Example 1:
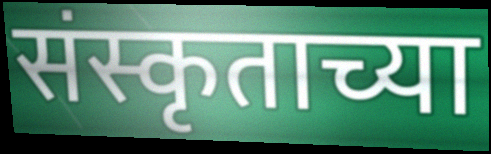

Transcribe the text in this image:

संस्कृताच्या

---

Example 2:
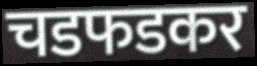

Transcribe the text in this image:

चडफडकर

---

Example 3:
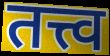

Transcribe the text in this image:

तत्त्व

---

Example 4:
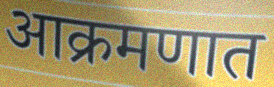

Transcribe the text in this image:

आक्रमणात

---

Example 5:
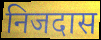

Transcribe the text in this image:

निजदास